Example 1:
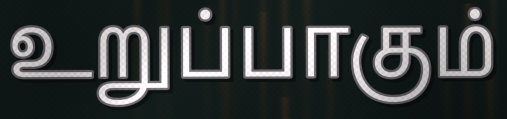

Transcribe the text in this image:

உறுப்பாகும்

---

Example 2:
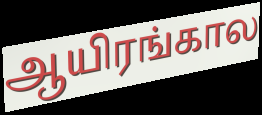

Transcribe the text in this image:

ஆயிரங்கால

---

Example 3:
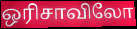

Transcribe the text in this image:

ஒரிசாவிலோ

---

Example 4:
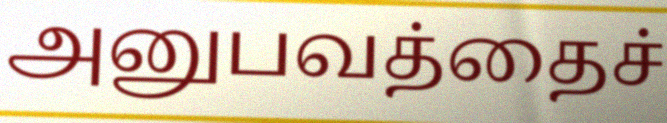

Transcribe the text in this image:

அனுபவத்தைச்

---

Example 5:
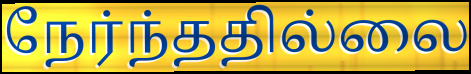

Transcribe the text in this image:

நேர்ந்ததில்லை